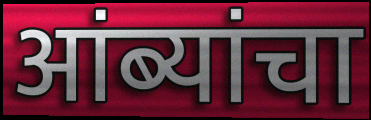
आंब्यांचा